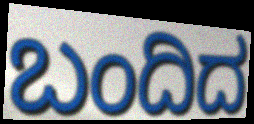
ಬಂದಿದ